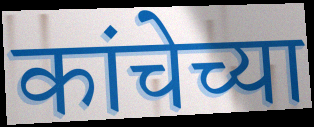
कांचेच्या